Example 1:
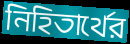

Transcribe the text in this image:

নিহিতার্থের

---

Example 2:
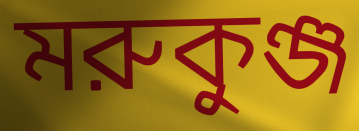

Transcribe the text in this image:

মরুকুঞ্জ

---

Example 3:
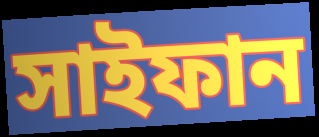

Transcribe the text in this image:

সাইফান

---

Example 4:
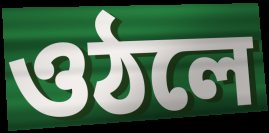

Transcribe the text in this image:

ওঠলে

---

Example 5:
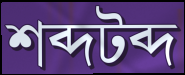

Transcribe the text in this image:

শব্দটব্দ